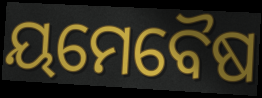
ୟମେବୈଷ